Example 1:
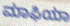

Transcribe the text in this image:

ಮಾಫಿಯಾ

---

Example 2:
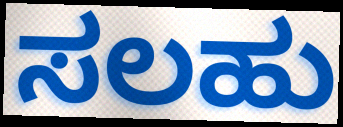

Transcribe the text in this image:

ಸಲಹು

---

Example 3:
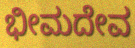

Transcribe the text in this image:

ಭೀಮದೇವ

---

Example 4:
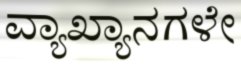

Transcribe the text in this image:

ವ್ಯಾಖ್ಯಾನಗಳೇ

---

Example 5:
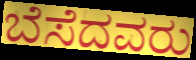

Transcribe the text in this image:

ಬೆಸೆದವರು